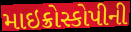
માઇક્રોસ્કોપીની